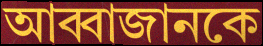
আব্বাজানকে